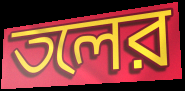
তলের